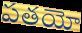
పతయో